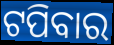
ଟପିବାର